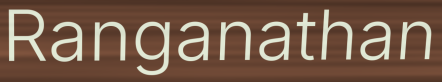
Ranganathan